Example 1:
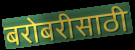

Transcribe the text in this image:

बरोबरीसाठी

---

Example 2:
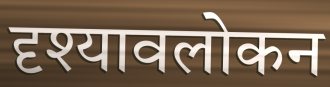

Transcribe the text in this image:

दृश्‍यावलोकन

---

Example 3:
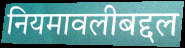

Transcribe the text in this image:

नियमावलीबद्दल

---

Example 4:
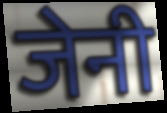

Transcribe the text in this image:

जेनी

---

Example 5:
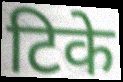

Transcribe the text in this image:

टिके